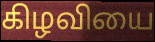
கிழவியை